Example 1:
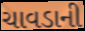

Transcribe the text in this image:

ચાવડાની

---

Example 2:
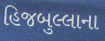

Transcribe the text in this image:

હિજબુલ્લાના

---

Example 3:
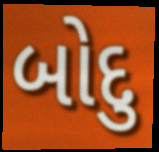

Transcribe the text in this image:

બોદુ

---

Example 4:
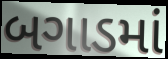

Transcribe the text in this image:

બગાડમાં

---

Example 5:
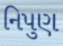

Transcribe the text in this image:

નિપુણ